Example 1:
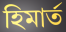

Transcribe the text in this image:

হিমার্ত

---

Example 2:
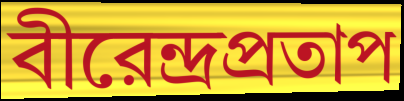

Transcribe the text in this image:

বীরেন্দ্রপ্রতাপ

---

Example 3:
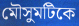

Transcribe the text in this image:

মৌসুমটিকে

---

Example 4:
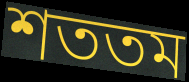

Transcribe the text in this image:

শততম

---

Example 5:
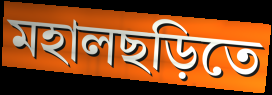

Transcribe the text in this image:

মহালছড়িতে